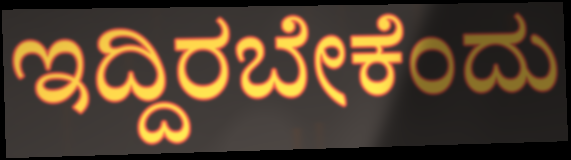
ಇದ್ದಿರಬೇಕೆಂದು